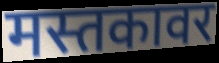
मस्तकावर